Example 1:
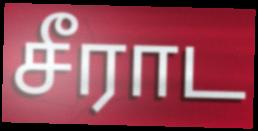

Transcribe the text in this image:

சீராட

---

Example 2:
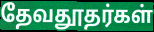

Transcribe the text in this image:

தேவதூதர்கள்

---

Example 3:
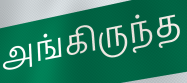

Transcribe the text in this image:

அங்கிருந்த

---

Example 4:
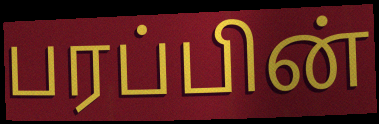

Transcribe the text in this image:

பரப்பின்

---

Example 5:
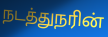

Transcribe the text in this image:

நடத்துநரின்